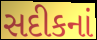
સદીકનાં